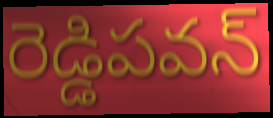
రెడ్డిపవన్